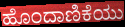
ಹೊಂದಾಣಿಕೆಯು